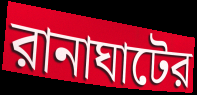
রানাঘাটের